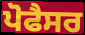
ਪੋਫੈਸਰ